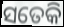
ସତେକି